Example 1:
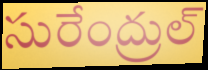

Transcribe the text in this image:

సురేంద్రుల్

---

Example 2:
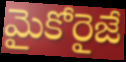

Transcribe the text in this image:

మైకోరైజే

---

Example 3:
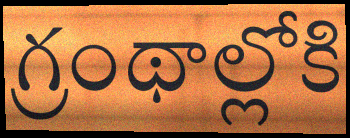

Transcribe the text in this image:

గ్రంథాల్లోకి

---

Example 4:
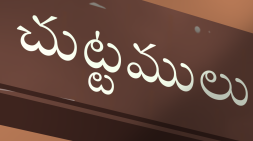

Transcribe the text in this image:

చుట్టములు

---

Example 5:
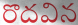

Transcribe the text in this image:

రొదవిన